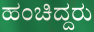
ಹಂಚಿದ್ದರು